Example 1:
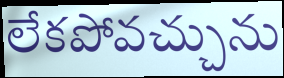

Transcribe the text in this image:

లేకపోవచ్చును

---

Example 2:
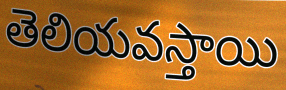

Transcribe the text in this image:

తెలియవస్తాయి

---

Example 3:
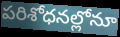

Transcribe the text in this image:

పరిశోధనల్లోనూ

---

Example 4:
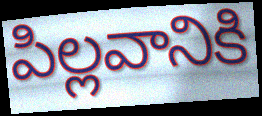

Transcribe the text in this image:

పిల్లవానికి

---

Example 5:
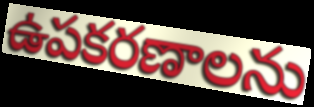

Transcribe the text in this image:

ఉపకరణాలను